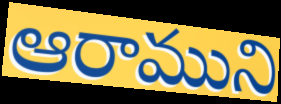
ఆరాముని